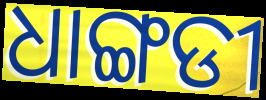
ଧାଙ୍ଗଡୀ